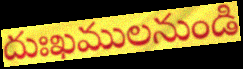
దుఃఖములనుండి